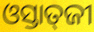
ଓସ୍ତାତ୍‌ଜୀ